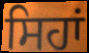
ਸਿਹਾਂ